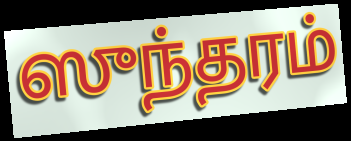
ஸுந்தரம்